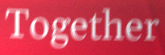
Together